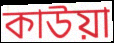
কাউয়া